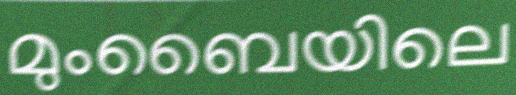
മുംബൈയിലെ